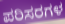
ಪರಿಸರಗಳ